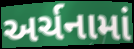
અર્ચનામાં